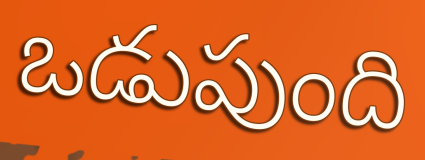
ఒడుపుంది